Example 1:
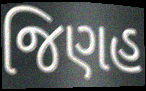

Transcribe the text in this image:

જિણહ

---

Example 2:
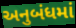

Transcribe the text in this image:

અનુબંધમાં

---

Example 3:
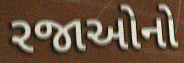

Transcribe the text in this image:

રજાઓનો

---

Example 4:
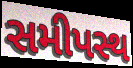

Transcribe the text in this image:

સમીપસ્થ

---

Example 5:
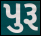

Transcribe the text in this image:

પુરૂ